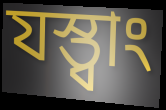
যস্ত্বাং